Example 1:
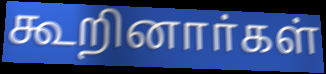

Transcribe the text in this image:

கூறினார்கள்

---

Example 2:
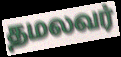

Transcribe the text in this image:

தமலவர்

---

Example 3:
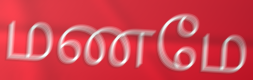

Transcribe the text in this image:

மணமே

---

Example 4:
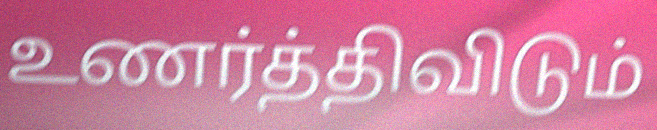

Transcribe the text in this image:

உணர்த்திவிடும்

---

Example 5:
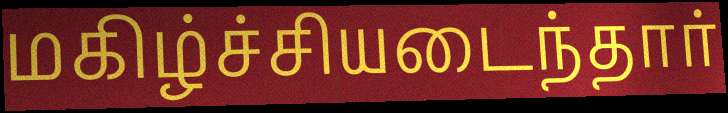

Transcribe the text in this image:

மகிழ்ச்சியடைந்தார்